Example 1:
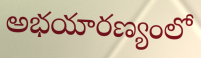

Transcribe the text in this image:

అభయారణ్యంలో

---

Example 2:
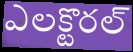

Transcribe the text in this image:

ఎలక్టొరల్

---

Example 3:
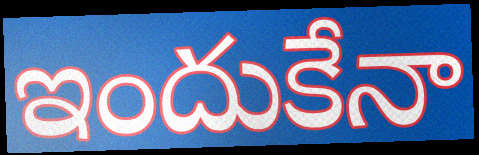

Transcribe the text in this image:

ఇందుకేనా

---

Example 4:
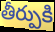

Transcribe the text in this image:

తీర్పుకి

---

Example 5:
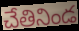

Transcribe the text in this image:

చేతినిండ